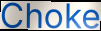
Choke